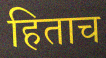
हिताच